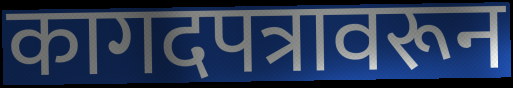
कागदपत्रावरून